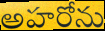
అహరోను